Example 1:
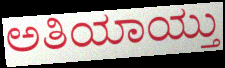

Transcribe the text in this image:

ಅತಿಯಾಯ್ತು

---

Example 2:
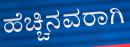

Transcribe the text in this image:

ಹೆಚ್ಚಿನವರಾಗಿ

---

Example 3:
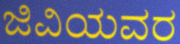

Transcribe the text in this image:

ಜಿವಿಯವರ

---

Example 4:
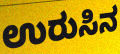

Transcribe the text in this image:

ಉರುಸಿನ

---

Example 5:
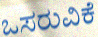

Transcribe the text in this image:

ಒಸರುವಿಕೆ